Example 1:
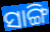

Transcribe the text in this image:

ସାଙ୍ଗି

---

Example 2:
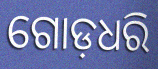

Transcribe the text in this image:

ଗୋଡ଼ଧରି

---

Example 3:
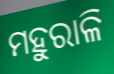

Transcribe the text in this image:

ମହୁରାଳି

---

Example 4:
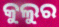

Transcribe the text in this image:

କୁଲୁର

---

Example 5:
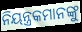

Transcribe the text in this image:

ନିୟନ୍ତ୍ରକମାନଙ୍କୁ